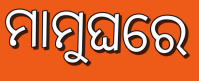
ମାମୁଘରେ